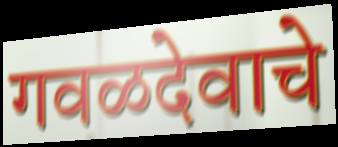
गवळदेवाचे